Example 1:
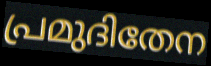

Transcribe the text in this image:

പ്രമുദിതേന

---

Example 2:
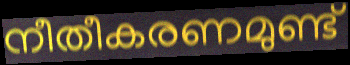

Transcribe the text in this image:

നീതീകരണമുണ്ട്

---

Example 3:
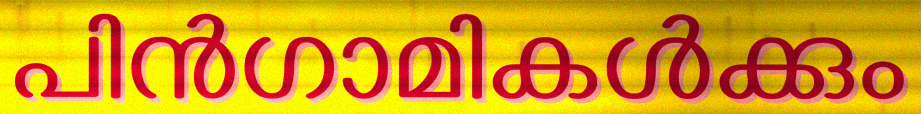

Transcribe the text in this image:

പിൻഗാമികൾക്കും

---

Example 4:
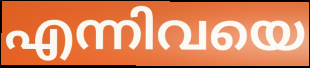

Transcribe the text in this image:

എന്നിവയെ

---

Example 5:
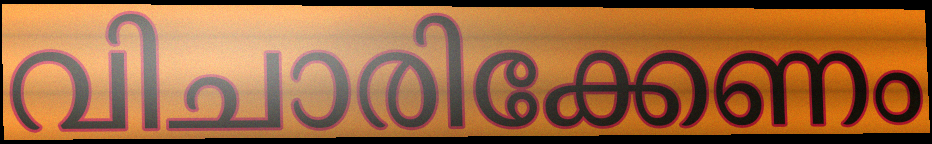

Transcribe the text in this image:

വിചാരിക്കേണം